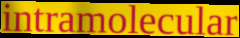
intramolecular